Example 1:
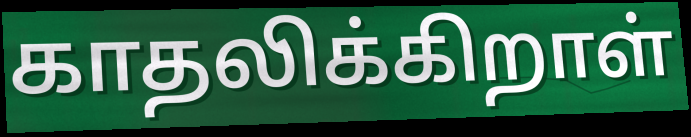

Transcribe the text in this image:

காதலிக்கிறாள்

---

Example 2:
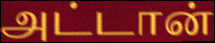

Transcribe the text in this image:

அட்டான்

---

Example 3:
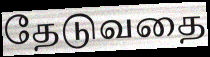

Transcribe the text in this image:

தேடுவதை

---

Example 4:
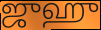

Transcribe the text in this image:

ஜுஹு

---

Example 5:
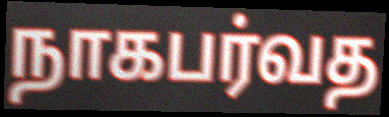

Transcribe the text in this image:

நாகபர்வத